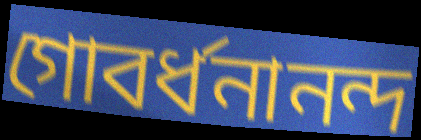
গোবর্ধনানন্দ